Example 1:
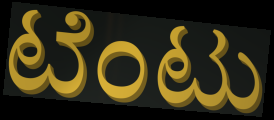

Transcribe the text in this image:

ಟೆಂಟು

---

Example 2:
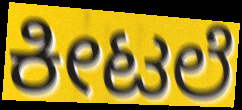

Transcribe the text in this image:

ಕೀಟಲೆ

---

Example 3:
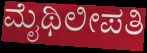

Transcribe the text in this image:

ಮೈಥಿಲೀಪತಿ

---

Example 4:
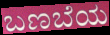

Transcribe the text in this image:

ಬಣಬೆಯ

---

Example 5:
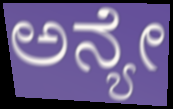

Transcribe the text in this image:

ಅನ್ಯೇ